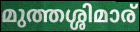
മുത്തശ്ശിമാര്